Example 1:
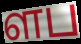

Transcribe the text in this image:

ளப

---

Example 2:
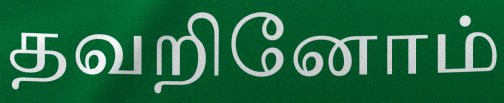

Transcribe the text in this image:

தவறினோம்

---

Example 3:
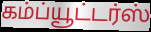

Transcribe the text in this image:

கம்ப்யூட்டர்ஸ்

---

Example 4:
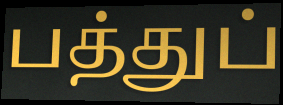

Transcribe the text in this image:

பத்துப்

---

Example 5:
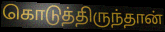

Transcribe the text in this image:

கொடுத்திருந்தான்